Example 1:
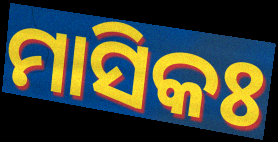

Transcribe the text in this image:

ମାସିକଃ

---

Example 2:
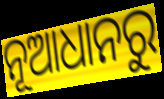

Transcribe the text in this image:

ନୂଆଧାନରୁ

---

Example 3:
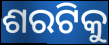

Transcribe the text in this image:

ଶରଟିକୁ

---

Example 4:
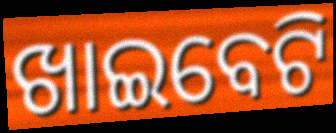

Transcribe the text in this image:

ଖାଇବେଟି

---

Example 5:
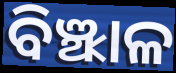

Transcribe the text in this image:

ବିଞ୍ଝାଳ